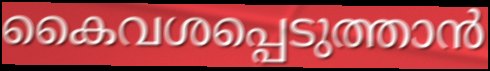
കൈവശപ്പെടുത്താൻ